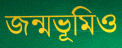
জন্মভূমিও